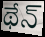
థేన్